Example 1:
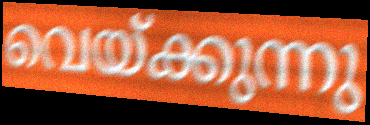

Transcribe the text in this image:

വെയ്ക്കുന്നു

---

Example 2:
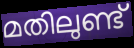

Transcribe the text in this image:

മതിലുണ്ട്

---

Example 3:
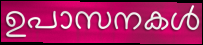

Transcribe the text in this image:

ഉപാസനകൾ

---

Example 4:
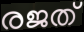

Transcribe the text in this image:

രജത്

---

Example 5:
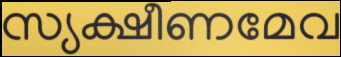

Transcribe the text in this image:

സ്യക്ഷീണമേവ